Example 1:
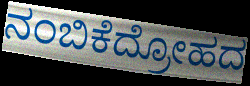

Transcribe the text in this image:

ನಂಬಿಕೆದ್ರೋಹದ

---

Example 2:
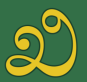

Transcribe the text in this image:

ಖಿ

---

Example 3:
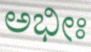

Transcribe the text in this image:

ಅಭೀಃ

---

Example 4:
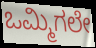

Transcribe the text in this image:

ಒಮ್ಮಿಗಲೇ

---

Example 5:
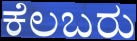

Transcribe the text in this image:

ಕೆಲಬರು